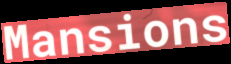
Mansions